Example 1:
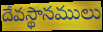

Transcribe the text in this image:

దేవస్థానములు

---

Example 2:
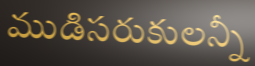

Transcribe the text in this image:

ముడిసరుకులన్నీ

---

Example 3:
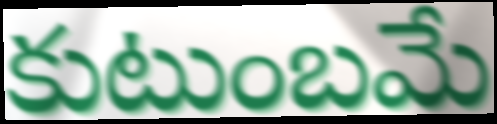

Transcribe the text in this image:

కుటుంబమే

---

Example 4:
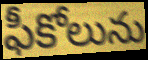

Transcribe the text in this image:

ఫీకోలును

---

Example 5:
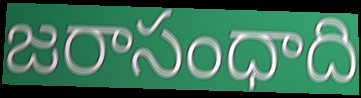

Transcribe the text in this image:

జరాసంధాది